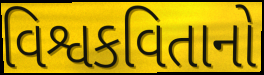
વિશ્વકવિતાનો